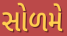
સોળમે